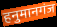
हनुमानगंज